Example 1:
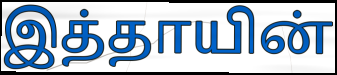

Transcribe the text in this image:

இத்தாயின்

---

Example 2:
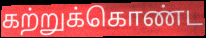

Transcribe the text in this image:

கற்றுக்கொண்ட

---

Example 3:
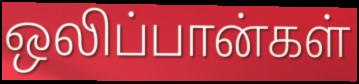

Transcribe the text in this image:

ஒலிப்பான்கள்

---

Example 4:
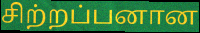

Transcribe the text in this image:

சிற்றப்பனான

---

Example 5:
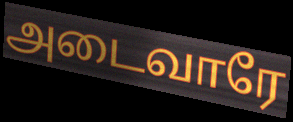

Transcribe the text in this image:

அடைவாரே